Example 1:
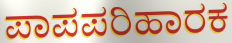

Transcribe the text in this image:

ಪಾಪಪರಿಹಾರಕ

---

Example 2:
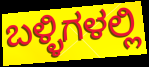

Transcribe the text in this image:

ಬಳ್ಳಿಗಳಲ್ಲಿ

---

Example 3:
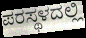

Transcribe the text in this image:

ಪರಸ್ಥಳದಲ್ಲಿ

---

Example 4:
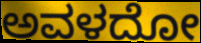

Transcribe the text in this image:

ಅವಳದೋ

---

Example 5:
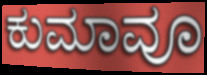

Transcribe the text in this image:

ಕುಮಾವೂ